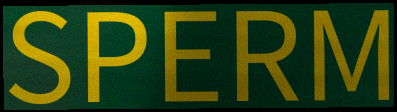
SPERM